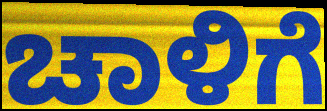
ಚಾಳಿಗೆ